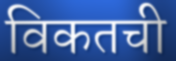
विकतची